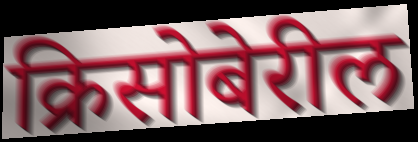
क्रिसोबेरील